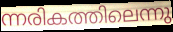
ന്നരികത്തിലെന്നു